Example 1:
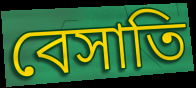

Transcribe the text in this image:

বেসাতি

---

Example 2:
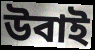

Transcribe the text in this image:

উবাই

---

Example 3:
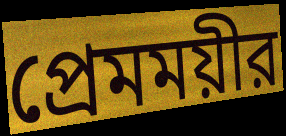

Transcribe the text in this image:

প্রেমময়ীর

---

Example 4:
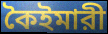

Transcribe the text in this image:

কৈইমারী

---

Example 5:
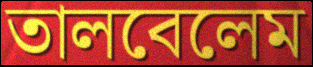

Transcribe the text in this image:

তালবেলেম